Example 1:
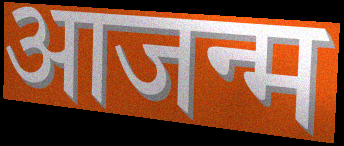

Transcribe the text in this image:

आजन्म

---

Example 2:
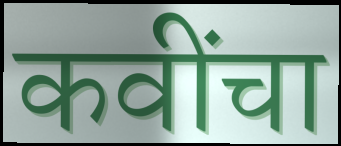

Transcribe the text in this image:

कवींचा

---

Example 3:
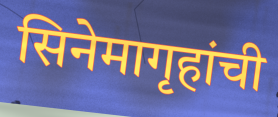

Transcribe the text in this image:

सिनेमागृहांची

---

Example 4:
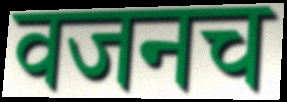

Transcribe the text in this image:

वजनच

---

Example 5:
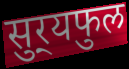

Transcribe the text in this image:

सुर्यफुल